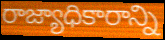
రాజ్యాధికారాన్ని